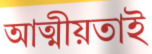
আত্মীয়তাই